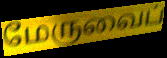
மேருவைப்